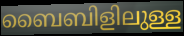
ബൈബിളിലുള്ള